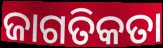
ଜାଗତିକତା